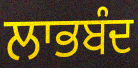
ਲਾਭਬੰਦ